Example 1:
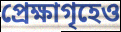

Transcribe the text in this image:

প্রেক্ষাগৃহেও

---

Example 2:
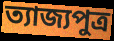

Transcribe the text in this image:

ত্যাজ্যপুত্র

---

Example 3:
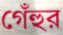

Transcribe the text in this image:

গেঁহুর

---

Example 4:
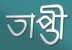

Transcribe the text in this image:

তাপ্তী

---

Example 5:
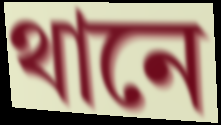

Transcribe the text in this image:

থানে